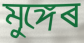
মুঙ্গেৰ